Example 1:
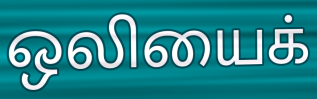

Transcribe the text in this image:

ஒலியைக்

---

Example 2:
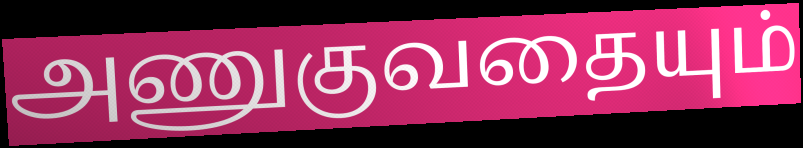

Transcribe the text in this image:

அணுகுவதையும்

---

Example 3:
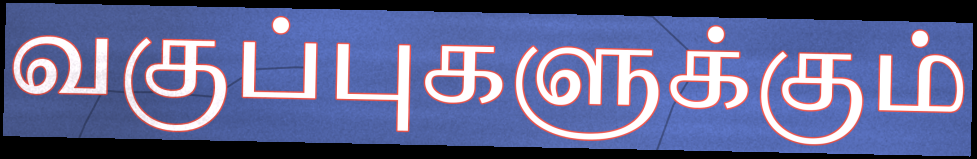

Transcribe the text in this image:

வகுப்புகளுக்கும்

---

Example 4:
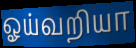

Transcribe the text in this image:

ஓய்வறியா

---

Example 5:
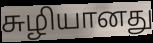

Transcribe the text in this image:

சுழியானது